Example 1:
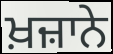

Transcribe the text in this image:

ਖ਼ਜ਼ਾਨੇ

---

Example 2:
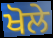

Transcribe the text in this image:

ਖੋਲੇ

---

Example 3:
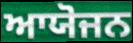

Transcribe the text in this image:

ਆਯੋਜਨ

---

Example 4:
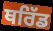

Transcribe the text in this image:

ਥਰਿੱਡ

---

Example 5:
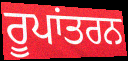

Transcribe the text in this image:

ਰੂਪਾਂਤਰਨ